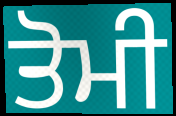
ਤੋਮੀ